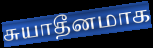
சுயாதீனமாக